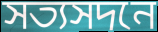
সত্যসদনে